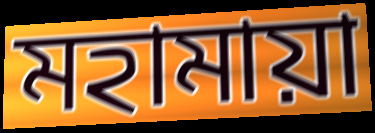
মহামায়া